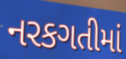
નરકગતીમાં